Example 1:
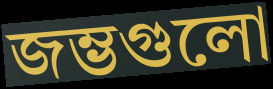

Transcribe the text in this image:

জম্ভগুলো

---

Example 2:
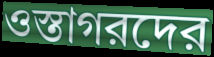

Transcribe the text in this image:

ওস্তাগরদের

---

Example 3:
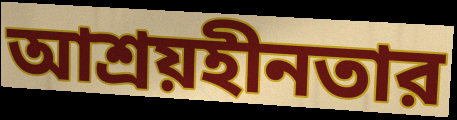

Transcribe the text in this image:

আশ্রয়হীনতার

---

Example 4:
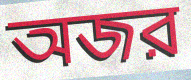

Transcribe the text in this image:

অজর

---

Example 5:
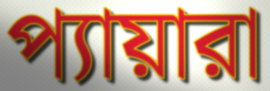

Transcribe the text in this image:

প্যায়ারা